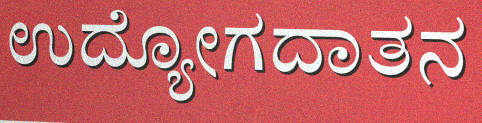
ಉದ್ಯೋಗದಾತನ